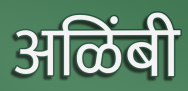
अळिंबी